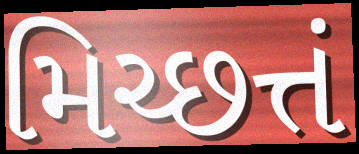
મિચ્છત્તં